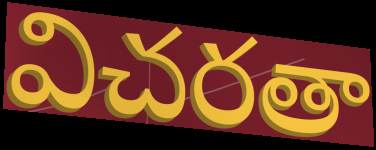
విచరతా